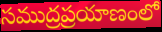
సముద్రప్రయాణంలో